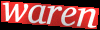
waren